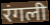
रंगली